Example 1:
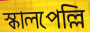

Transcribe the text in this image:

স্কালপেল্লি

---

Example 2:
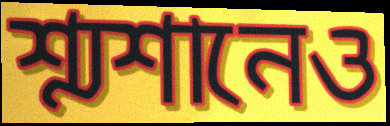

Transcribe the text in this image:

শ্মশানেও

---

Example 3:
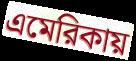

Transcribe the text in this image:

এমেরিকায়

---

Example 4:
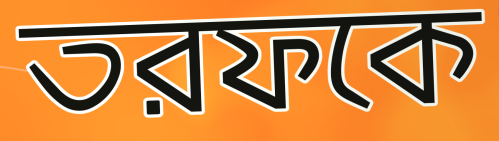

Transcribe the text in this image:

তরফকে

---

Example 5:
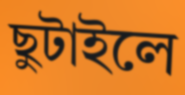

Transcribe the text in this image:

ছুটাইলে